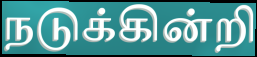
நடுக்கின்றி